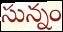
సున్నం